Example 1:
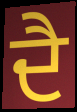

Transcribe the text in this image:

ਦੈ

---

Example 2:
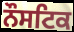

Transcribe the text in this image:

ਨੌਸਟਿਕ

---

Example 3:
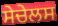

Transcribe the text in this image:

ਸੇਚੇਲਸ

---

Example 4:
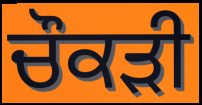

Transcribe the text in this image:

ਚੌਕੜੀ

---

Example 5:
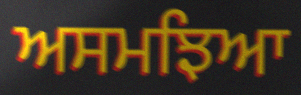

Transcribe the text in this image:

ਅਸਮਝਿਆ